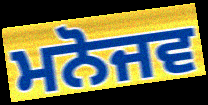
ਮਨੋਜਵ